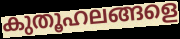
കുതൂഹലങ്ങളെ